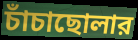
চাঁচাছোলার